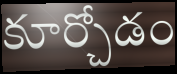
కూర్చోడం